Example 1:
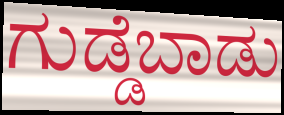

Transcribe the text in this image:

ಗುಡ್ಡೆಬಾಡು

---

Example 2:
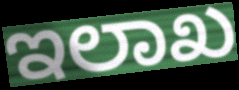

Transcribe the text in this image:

ಇಲಾಖ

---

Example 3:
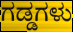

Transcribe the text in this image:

ಗಡ್ಡಗಳು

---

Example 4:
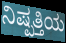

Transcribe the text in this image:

ನಿಷ್ಪತ್ತಿಯ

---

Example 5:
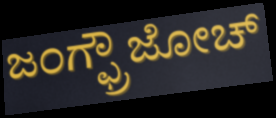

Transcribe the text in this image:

ಜಂಗ್ಫ್ರೌಜೋಚ್